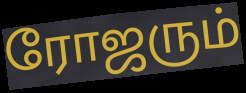
ரோஜரும்